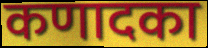
कणादका